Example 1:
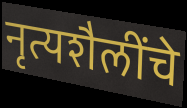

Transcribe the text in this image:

नृत्यशैलींचे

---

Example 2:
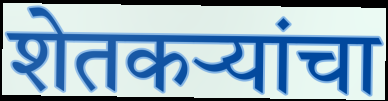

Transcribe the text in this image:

शेतकऱ्यांचा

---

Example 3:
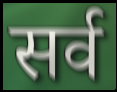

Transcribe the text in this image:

सर्व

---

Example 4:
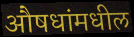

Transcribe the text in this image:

औषधांमधील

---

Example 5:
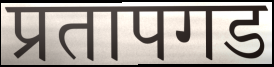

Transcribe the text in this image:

प्रतापगड